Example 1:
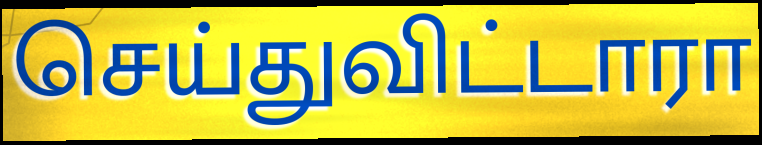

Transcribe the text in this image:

செய்துவிட்டாரா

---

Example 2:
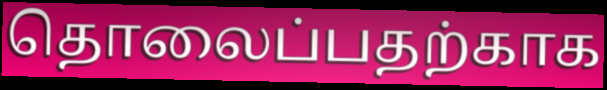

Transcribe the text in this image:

தொலைப்பதற்காக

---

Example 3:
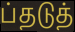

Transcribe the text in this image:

ப்தடுத்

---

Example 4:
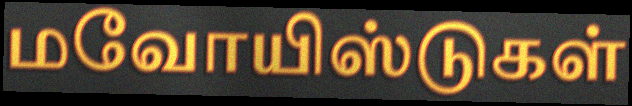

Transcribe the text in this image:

மவோயிஸ்டுகள்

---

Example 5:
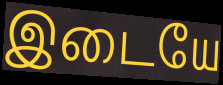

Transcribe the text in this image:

இடையே